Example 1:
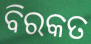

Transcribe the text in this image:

ବିରକତ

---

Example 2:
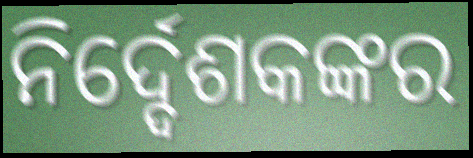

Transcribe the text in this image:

ନିର୍ଦ୍ଦେଶକଙ୍କର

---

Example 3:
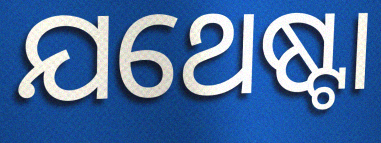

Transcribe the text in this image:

ଯଥେଷ୍ଟା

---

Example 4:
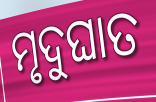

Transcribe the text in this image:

ମୃଦୁଘାତ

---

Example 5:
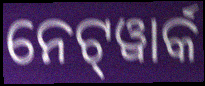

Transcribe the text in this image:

ନେଟ୍‌ୱାର୍କ